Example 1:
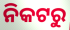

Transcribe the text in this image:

ନିକଟରୁ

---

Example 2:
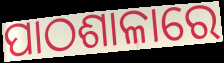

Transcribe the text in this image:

ପାଠଶାଳାରେ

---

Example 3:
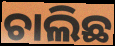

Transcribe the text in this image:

ଚାଲିଛ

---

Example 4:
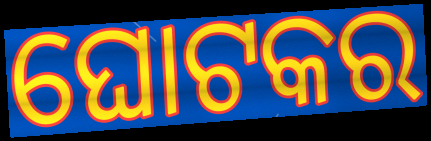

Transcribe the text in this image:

ଘୋଟକର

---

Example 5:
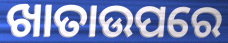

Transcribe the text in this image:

ଖାତାଉପରେ